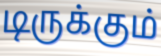
டிருக்கும்